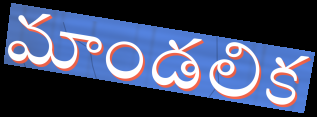
మాండలిక